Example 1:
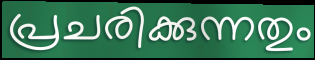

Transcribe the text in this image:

പ്രചരിക്കുന്നതും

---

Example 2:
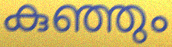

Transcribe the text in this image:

കുഞ്ഞും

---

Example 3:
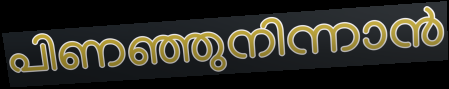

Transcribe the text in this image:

പിണഞ്ഞുനിന്നാൻ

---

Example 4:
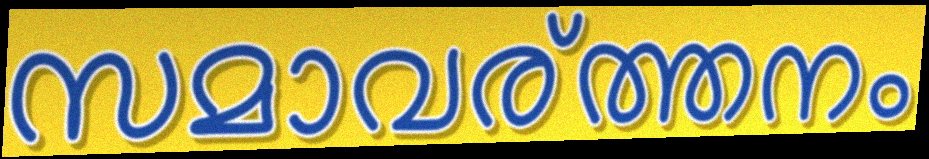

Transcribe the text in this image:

സമാവര്ത്തനം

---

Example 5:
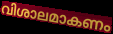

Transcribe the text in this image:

വിശാലമാകണം